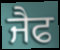
ਜੈਫ